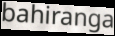
bahiranga